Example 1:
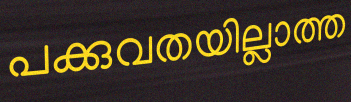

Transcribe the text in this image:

പക്കുവതയില്ലാത്ത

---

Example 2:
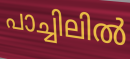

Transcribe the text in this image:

പാച്ചിലിൽ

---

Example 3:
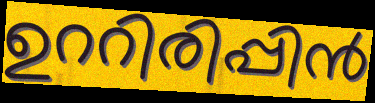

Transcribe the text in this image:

ഉററിരിപ്പിൻ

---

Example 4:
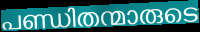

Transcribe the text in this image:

പണ്ഡിതന്മാരുടെ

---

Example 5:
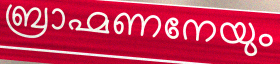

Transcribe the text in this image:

ബ്രാഹ്മണനേയും